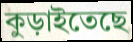
কুড়াইতেছে